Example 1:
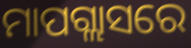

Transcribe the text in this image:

ମାପଗ୍ଲାସରେ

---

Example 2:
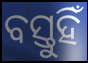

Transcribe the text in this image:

ବସ୍ତୁହିଁ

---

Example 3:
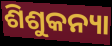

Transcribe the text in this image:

ଶିଶୁକନ୍ୟା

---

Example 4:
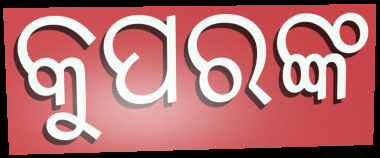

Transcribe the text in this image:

କୁପରଙ୍କ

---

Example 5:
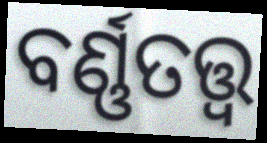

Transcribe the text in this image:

ବର୍ଣ୍ଣତତ୍ତ୍ଵ